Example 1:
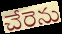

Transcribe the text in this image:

చేరెను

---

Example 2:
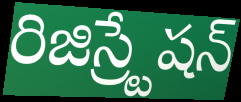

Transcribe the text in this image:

రిజిస్ర్టేషన్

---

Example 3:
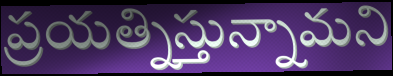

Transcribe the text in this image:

ప్రయత్నిస్తున్నామని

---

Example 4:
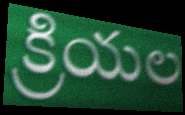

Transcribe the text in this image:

క్రియల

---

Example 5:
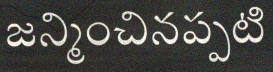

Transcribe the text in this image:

జన్మించినప్పటి